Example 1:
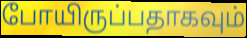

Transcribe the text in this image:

போயிருப்பதாகவும்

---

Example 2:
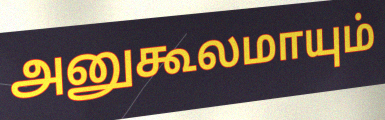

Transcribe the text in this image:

அனுகூலமாயும்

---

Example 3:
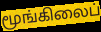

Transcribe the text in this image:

மூங்கிலைப்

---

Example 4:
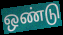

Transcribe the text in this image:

ஒண்டு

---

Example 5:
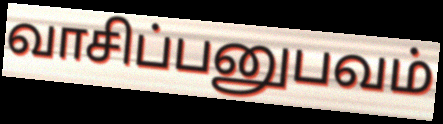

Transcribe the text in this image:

வாசிப்பனுபவம்